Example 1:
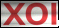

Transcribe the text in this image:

XOI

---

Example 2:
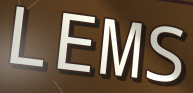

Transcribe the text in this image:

LEMS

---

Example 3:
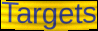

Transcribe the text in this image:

Targets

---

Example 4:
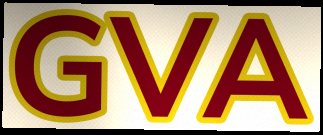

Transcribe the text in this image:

GVA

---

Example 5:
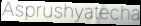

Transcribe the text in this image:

Asprushyatecha